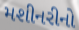
મશીનરીનો